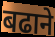
बढाने